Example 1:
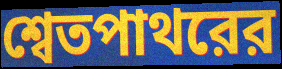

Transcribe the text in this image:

শ্বেতপাথরের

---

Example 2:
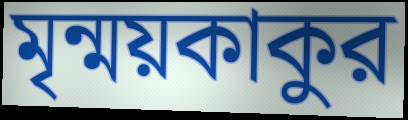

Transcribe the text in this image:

মৃন্ময়কাকুর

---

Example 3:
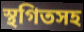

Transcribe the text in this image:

স্থগিতসহ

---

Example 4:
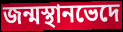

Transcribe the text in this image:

জন্মস্থানভেদে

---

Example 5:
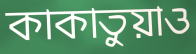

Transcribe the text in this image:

কাকাতুয়াও